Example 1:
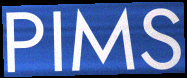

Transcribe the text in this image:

PIMS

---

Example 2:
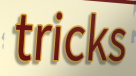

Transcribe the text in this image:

tricks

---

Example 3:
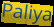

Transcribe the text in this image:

Paliya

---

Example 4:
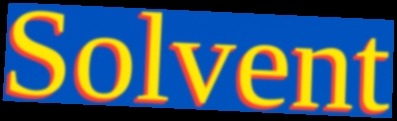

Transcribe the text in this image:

Solvent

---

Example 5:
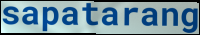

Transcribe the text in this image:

sapatarang